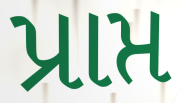
પ્રાપ્ત